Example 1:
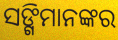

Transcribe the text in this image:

ସଙ୍ଗିମାନଙ୍କର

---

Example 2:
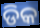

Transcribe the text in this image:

ଡିକ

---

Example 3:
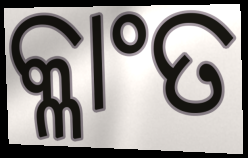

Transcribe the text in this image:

କ୍ଳାଂତ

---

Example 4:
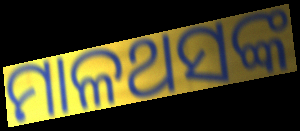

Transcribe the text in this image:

ମାଳଥସଙ୍କ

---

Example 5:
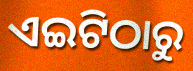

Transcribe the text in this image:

ଏଇଟିଠାରୁ